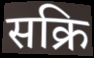
सक्रि